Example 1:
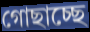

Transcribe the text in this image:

গোছাচ্ছে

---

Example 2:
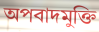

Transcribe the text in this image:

অপবাদমুক্তি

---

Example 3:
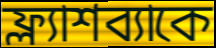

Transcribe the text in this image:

ফ্ল্যাশব্যাকে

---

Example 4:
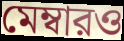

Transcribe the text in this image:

মেম্বারও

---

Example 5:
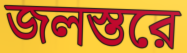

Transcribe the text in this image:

জলস্তরে